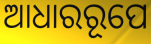
ଆଧାରରୂପେ